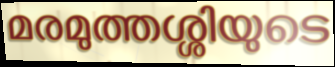
മരമുത്തശ്ശിയുടെ